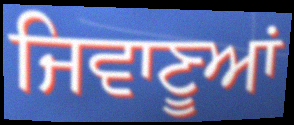
ਜਿਵਾਣੂਆਂ